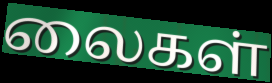
லைகள்